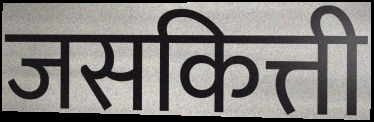
जसकित्ती